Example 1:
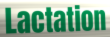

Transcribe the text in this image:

Lactation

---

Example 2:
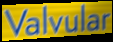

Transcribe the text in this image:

Valvular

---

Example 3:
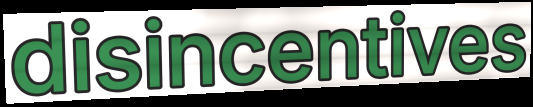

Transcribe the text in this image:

disincentives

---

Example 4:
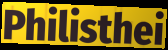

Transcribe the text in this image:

Philisthei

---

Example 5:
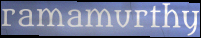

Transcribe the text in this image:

ramamurthy